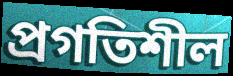
প্রগতিশীল